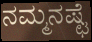
ನಮ್ಮನಷ್ಟೆ